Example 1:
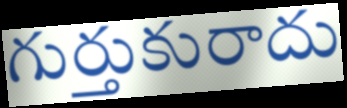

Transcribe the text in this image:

గుర్తుకురాదు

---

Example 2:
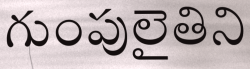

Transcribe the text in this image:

గుంపులైతిని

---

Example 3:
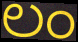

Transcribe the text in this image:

లం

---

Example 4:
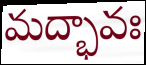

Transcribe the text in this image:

మద్భావః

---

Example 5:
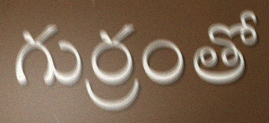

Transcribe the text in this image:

గుర్రంతో